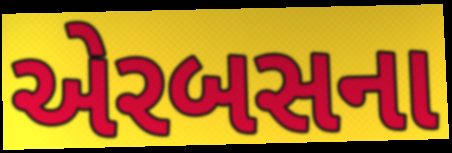
એરબસના